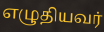
எழுதியவர்